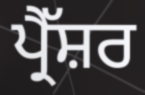
ਪ੍ਰੈੱਸ਼ਰ